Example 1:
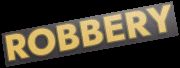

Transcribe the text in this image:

ROBBERY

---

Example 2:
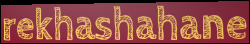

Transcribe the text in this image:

rekhashahane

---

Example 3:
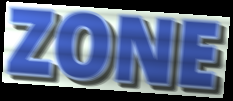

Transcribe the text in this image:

ZONE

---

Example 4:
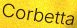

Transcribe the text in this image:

Corbetta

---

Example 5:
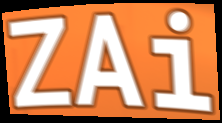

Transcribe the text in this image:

ZAi